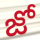
జో